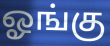
ஓங்கு